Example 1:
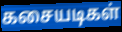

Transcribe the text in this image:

கசையடிகள்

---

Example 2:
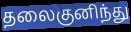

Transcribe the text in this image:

தலைகுனிந்து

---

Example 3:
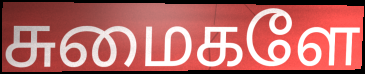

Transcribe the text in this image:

சுமைகளே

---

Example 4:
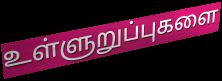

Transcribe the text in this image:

உள்ளுறுப்புகளை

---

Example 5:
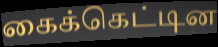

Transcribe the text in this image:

கைக்கெட்டின